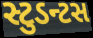
સ્ટુડન્ટસ